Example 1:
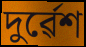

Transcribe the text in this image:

দুৰ্ৱেশ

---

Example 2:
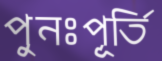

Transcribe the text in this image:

পুনঃপূৰ্তি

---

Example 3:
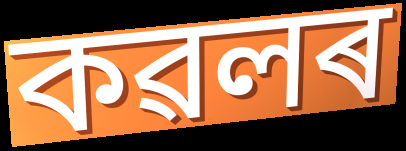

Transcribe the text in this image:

কৱলৰ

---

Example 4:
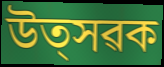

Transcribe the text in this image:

উত্সৱক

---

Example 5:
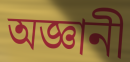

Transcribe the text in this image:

অজ্ঞানী